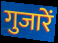
गुजारें